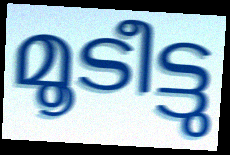
മൂടീട്ടു